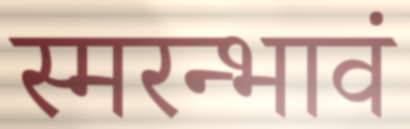
स्मरन्भावं